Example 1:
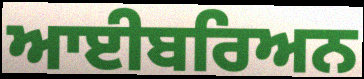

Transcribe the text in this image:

ਆਈਬਰਿਅਨ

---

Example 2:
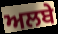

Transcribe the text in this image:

ਅਲਬੇ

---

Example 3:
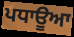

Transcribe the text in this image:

ਪਧਾਊਆ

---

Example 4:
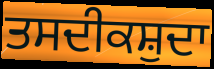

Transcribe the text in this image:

ਤਸਦੀਕਸ਼ੁਦਾ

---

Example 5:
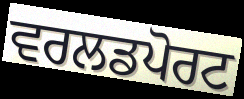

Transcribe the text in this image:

ਵਰਲਡਪੋਰਟ